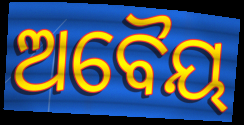
ଅବୈୟ